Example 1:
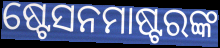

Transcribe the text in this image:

ଷ୍ଟେସନମାଷ୍ଟରଙ୍କ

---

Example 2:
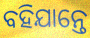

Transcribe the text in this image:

ବହିଯାନ୍ତେ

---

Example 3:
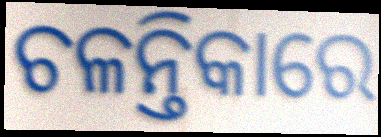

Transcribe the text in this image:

ଚଳନ୍ତିକାରେ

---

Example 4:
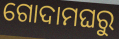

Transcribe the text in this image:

ଗୋଦାମଘରୁ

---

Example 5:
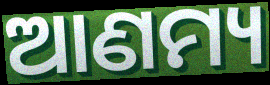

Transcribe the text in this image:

ଆଣମ୍ୟ